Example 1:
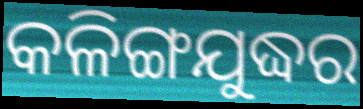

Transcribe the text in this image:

କଳିଙ୍ଗଯୁଦ୍ଧର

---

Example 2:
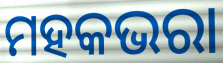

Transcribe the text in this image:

ମହକଭରା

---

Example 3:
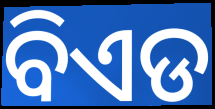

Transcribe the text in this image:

ବିଏଡ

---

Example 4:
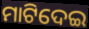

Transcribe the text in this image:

ମାଟିଦେଇ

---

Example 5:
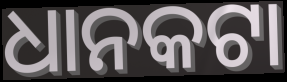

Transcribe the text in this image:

ଧାନକଟା